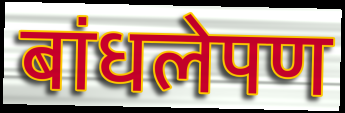
बांधलेपण